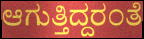
ಆಗುತ್ತಿದ್ದರಂತೆ